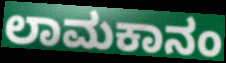
ಲಾಮಕಾನಂ